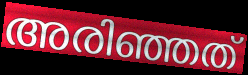
അരിഞ്ഞത്